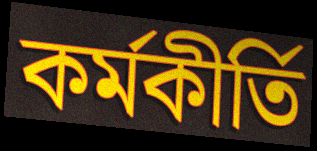
কর্মকীর্তি